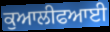
ਕੁਆਲੀਫਆਈ